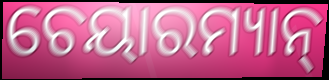
ଚେୟାରମ୍ୟାନ୍